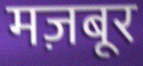
मज़बूर